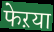
फेऱया